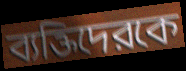
ব্যক্তিদেরকে